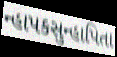
ન્હાપકસુન્હાપિતા